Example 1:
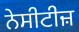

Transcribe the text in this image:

ਨੇਸੀਟੀਜ਼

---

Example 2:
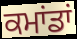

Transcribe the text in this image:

ਕਮਾਂਡਾਂ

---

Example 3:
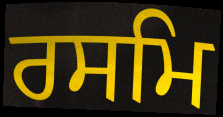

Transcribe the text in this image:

ਰਸਮਿ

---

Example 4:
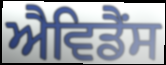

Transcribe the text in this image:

ਐਵਿਡੈਂਸ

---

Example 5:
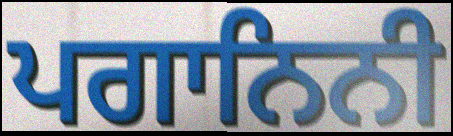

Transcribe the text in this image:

ਪਗਾਨਿਨੀ